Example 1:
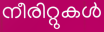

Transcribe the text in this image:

നീരിറ്റുകൾ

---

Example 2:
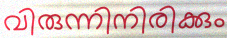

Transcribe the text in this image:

വിരുന്നിനിരിക്കും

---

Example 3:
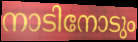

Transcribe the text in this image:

നാടിനോടും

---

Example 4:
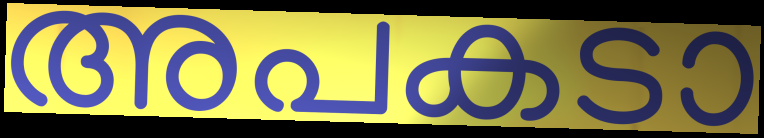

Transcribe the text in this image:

അപകടാ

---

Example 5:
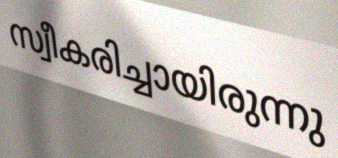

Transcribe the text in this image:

സ്വീകരിച്ചായിരുന്നു